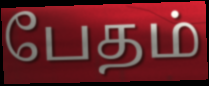
பேதம்